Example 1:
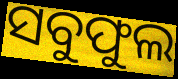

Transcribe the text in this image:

ସବୁଫୁଲ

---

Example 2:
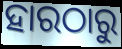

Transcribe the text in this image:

ହାରଠାରୁ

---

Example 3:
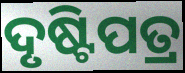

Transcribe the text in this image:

ଦୃଷ୍ଟିପତ୍ର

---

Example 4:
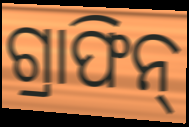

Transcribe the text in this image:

ଗ୍ରାଫିନ୍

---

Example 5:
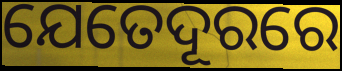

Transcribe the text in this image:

ଯେତେଦୂରରେ